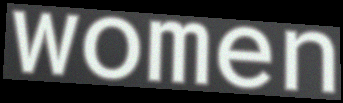
women